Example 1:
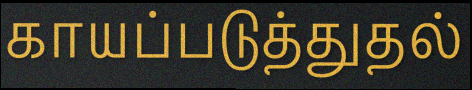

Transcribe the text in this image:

காயப்படுத்துதல்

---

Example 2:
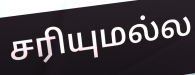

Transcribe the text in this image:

சரியுமல்ல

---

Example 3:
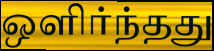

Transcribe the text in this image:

ஒளிர்ந்தது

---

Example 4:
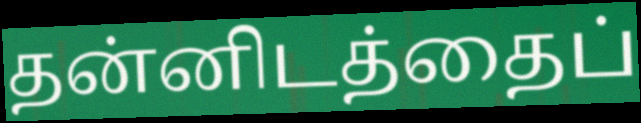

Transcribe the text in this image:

தன்னிடத்தைப்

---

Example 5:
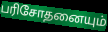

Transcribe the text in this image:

பரிசோதனையும்